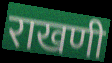
राखणी